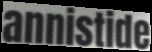
annistide